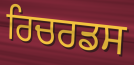
ਰਿਚਰਡਸ